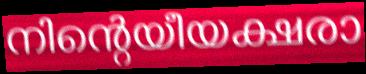
നിന്റെയീയക്ഷരാ